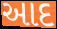
આદ